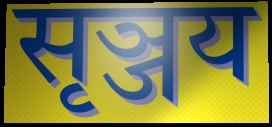
सृञ्जय